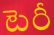
టెరీ